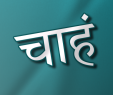
चाहं